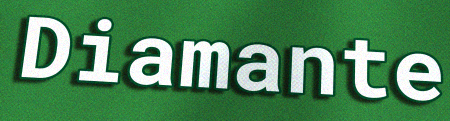
Diamante